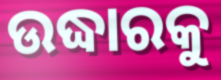
ଉଦ୍ଧାରକୁ